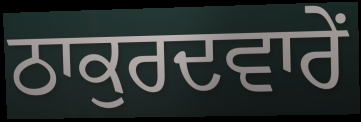
ਠਾਕੁਰਦਵਾਰੇਂ